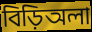
বিড়িঅলা